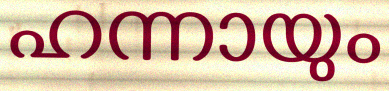
ഹന്നായും